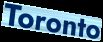
Toronto